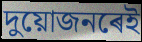
দুয়োজনৰেই